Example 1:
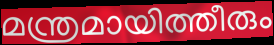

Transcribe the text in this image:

മന്ത്രമായിത്തീരും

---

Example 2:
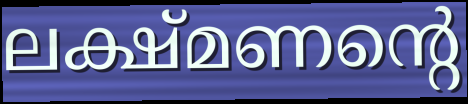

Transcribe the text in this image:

ലക്ഷ്മണന്റെ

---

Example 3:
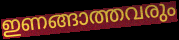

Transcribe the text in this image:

ഇണങ്ങാത്തവരും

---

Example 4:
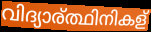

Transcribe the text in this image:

വിദ്യാര്ത്ഥിനികള്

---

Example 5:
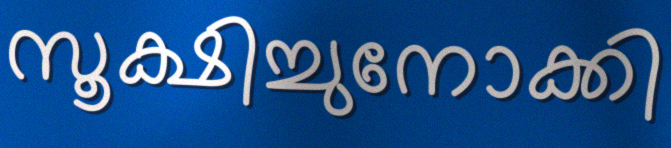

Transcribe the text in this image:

സൂക്ഷിച്ചുനോക്കി